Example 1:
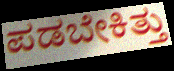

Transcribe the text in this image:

ಪಡಬೇಕಿತ್ತು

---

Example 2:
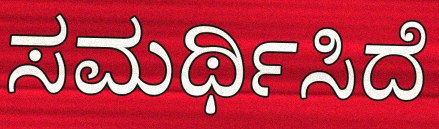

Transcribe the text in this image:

ಸಮರ್ಥಿಸಿದೆ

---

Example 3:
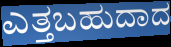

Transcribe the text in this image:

ಎತ್ತಬಹುದಾದ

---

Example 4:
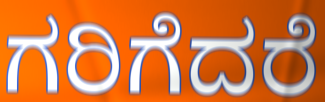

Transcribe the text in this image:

ಗರಿಗೆದರೆ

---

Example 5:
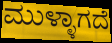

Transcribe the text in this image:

ಮುಳ್ಳಾಗದೆ